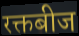
रक्तबीज